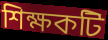
শিক্ষকটি